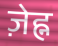
ज़ेह्न